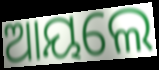
ଆୟଲେ